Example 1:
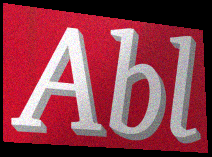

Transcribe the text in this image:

Abl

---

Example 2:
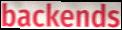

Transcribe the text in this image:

backends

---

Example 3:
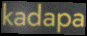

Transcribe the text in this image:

kadapa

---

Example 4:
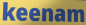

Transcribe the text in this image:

keenam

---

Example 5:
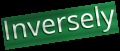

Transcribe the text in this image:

Inversely